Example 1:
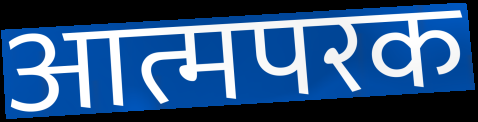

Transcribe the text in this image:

आत्मपरक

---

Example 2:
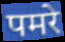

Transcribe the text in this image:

पमरे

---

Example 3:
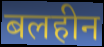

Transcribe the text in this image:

बलहीन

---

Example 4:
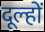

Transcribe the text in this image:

दूल्‍हों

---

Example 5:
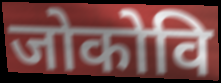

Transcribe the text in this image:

जोकोवि